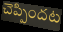
చెప్పిందట